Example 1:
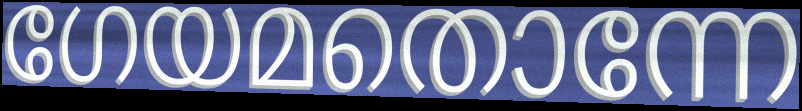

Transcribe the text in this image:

ഗേയമതൊന്നേ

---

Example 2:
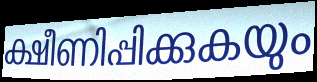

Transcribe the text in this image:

ക്ഷീണിപ്പിക്കുകയും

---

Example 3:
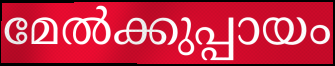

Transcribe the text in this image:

മേൽക്കുപ്പായം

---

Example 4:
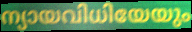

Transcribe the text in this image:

ന്യായവിധിയേയും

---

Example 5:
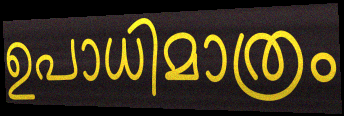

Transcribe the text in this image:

ഉപാധിമാത്രം